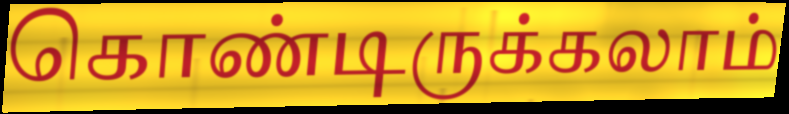
கொண்டிருக்கலாம்